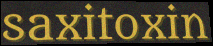
saxitoxin